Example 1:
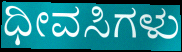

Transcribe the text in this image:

ಧೀವಸಿಗಳು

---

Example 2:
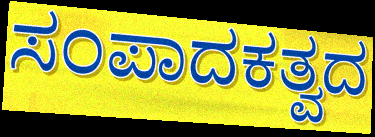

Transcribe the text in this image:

ಸಂಪಾದಕತ್ವದ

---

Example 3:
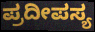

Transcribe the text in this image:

ಪ್ರದೀಪಸ್ಯ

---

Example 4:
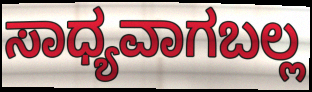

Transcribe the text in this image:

ಸಾಧ್ಯವಾಗಬಲ್ಲ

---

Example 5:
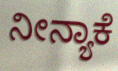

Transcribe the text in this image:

ನೀನ್ಯಾಕೆ